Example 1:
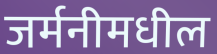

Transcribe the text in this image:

जर्मनीमधील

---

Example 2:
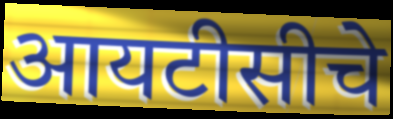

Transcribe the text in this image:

आयटीसीचे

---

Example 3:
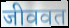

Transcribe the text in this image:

जीववत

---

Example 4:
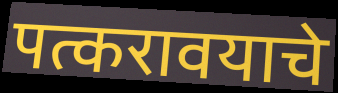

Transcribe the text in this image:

पत्करावयाचे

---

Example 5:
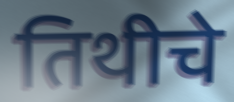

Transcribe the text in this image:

तिथीचे